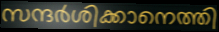
സന്ദർശിക്കാനെത്തി